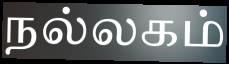
நல்லகம்